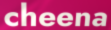
cheena